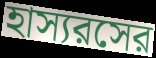
হাস্যরসের